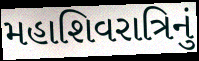
મહાશિવરાત્રિનું